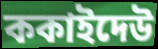
ককাইদেউ